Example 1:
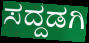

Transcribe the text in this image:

ಸದ್ದಡಗಿ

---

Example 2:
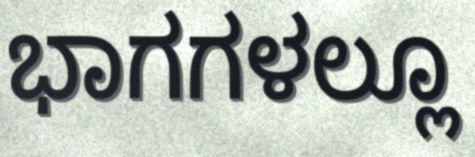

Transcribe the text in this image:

ಭಾಗಗಳಲ್ಲೂ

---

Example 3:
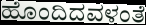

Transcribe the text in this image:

ಹೊಂದಿದವಳಂತೆ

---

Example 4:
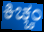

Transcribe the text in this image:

ಕಿಚ್ಚಂ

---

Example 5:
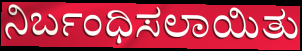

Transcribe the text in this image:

ನಿರ್ಬಂಧಿಸಲಾಯಿತು